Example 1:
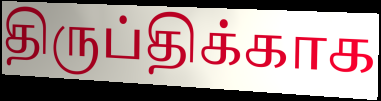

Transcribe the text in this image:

திருப்திக்காக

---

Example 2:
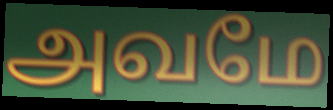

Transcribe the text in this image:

அவமே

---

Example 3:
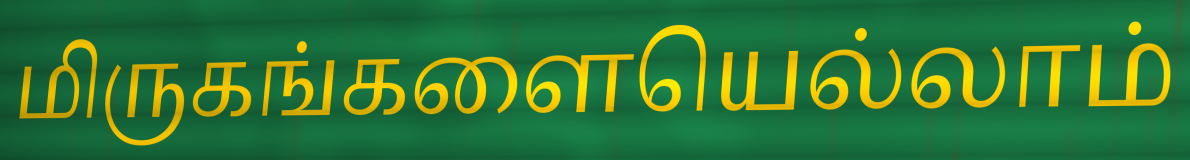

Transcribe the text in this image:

மிருகங்களையெல்லாம்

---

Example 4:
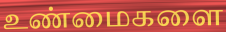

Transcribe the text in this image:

உண்மைகளை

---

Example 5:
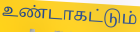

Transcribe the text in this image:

உண்டாகட்டும்